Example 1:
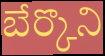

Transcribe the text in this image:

బేర్కొని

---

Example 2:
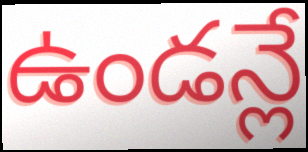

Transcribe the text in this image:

ఉండన్లే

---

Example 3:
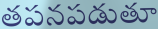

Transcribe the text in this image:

తపనపడుతూ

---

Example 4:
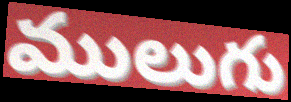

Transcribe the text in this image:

ములుగు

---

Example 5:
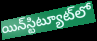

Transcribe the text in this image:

యిన్‌స్టిట్యూట్‌లో